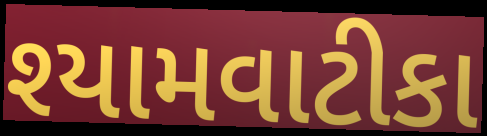
શ્યામવાટીકા